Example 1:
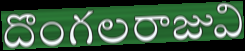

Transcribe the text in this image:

దొంగలరాజువి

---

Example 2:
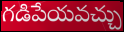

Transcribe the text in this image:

గడిపేయవచ్చు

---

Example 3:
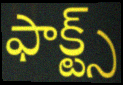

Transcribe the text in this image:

ఫాక్ట్స్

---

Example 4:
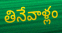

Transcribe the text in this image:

తినేవాళ్లం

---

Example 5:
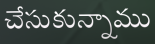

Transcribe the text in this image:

చేసుకున్నాము